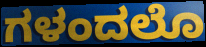
ಗಳಂದಲೊ